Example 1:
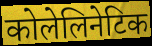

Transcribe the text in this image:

कोलेलिनेटिक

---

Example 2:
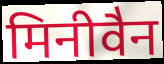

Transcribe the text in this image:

मिनीवैन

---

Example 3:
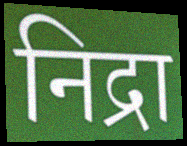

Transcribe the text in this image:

निद्रा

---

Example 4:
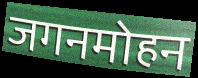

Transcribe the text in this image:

जगनमोहन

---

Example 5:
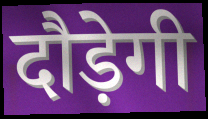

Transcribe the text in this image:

दौड़ेगी